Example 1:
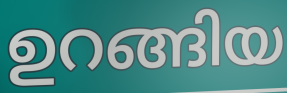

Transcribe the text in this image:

ഉറങ്ങിയ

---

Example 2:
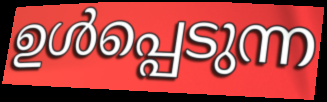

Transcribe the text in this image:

ഉൾപ്പെടുന്ന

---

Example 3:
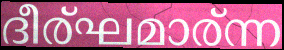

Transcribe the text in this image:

ദീര്ഘമാര്ന്ന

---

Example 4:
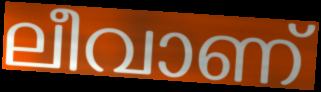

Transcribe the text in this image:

ലീവാണ്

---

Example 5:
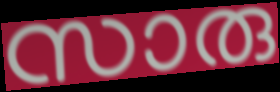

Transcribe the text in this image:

സാരു